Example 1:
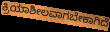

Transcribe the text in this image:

ಕ್ರಿಯಾಶೀಲವಾಗಬೇಕಾಗಿದೆ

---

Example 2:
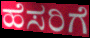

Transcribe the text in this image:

ಹೆಸರಿಗೆ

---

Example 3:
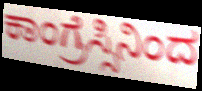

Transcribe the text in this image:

ಕಾಂಗ್ರೆಸ್ಸಿನಿಂದ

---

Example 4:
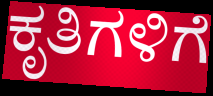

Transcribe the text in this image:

ಕೃತಿಗಳಿಗೆ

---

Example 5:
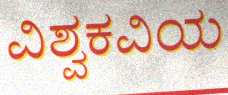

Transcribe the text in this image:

ವಿಶ್ವಕವಿಯ